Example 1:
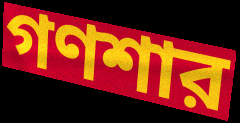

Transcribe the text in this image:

গণশার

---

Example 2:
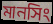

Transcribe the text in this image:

মানসিং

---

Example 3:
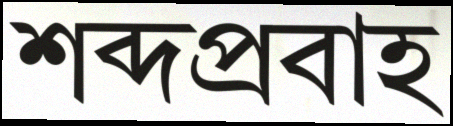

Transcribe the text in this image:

শব্দপ্রবাহ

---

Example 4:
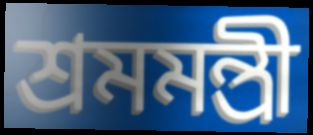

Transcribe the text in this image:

শ্রমমন্ত্রী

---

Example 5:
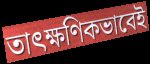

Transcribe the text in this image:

তাৎক্ষণিকভাবেই